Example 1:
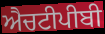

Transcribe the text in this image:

ਐਚਟੀਪੀਬੀ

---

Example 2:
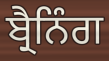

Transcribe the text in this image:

ਬ੍ਰੈਨਿੰਗ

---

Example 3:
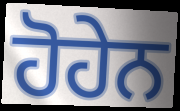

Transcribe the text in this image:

ਹੋਹੇਨ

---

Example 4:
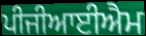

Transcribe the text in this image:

ਪੀਜੀਆਈਐਮ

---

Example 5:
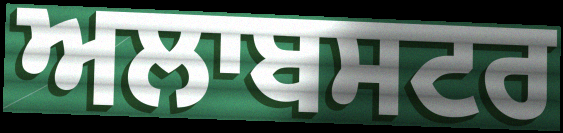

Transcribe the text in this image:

ਅਲਾਬਸਟਰ